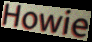
Howie